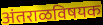
अंतराळविषयक